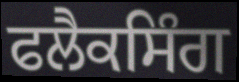
ਫਲੈਕਸਿੰਗ